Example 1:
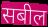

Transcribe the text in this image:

सबील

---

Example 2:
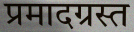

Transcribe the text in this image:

प्रमादग्रस्त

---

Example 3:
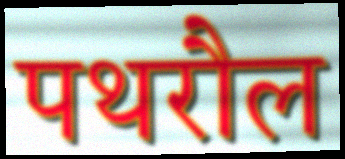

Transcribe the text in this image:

पथरौल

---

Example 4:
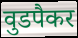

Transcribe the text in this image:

वुडपैकर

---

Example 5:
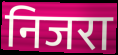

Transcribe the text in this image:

निजरा